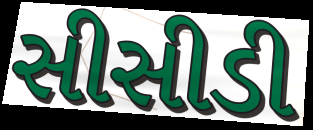
સીસીડી